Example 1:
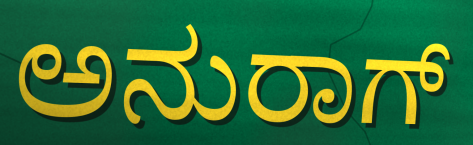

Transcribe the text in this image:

ಅನುರಾಗ್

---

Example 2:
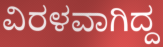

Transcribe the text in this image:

ವಿರಳವಾಗಿದ್ದ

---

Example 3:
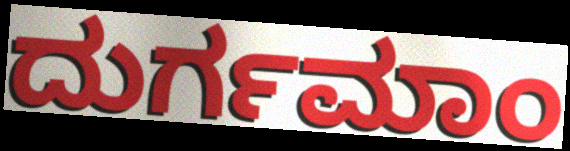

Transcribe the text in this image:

ದುರ್ಗಮಾಂ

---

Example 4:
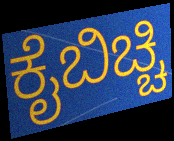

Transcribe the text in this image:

ಕೈಬಿಚ್ಚಿ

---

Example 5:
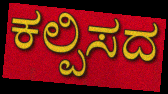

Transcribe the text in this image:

ಕಲ್ಪಿಸದ